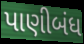
પાણીબંધ